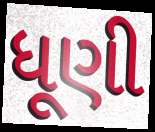
ધૂણી